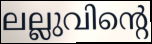
ലല്ലുവിന്റെ